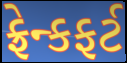
ફ્રેન્કફર્ટ